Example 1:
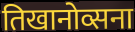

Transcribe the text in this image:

तिखानोव्सना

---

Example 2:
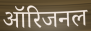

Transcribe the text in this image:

ऑरिजनल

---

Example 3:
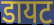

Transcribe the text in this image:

डायट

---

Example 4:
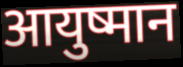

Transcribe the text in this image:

आयुष्मान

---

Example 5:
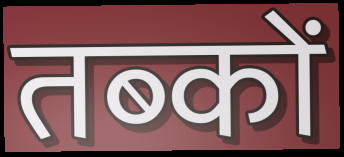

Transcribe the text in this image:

तब्कों